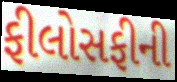
ફીલોસફીની